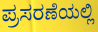
ಪ್ರಸರಣೆಯಲ್ಲಿ